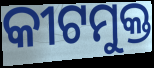
କୀଟମୁକ୍ତ